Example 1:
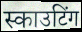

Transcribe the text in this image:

स्काउटिंग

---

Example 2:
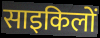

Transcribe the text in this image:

साइकिलों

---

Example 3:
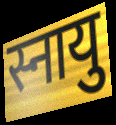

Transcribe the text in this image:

स्नायु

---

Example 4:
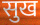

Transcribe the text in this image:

सुख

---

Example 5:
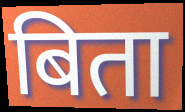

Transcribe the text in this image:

बिता